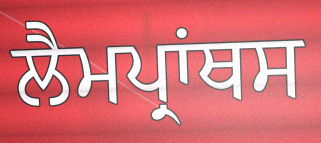
ਲੈਮਪ੍ਰਾਂਥਸ